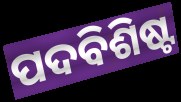
ପଦବିଶିଷ୍ଟ